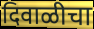
दिवाळीचा